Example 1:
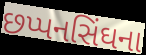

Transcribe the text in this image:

છપ્પનસિંઘના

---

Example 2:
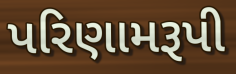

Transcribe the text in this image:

પરિણામરૂપી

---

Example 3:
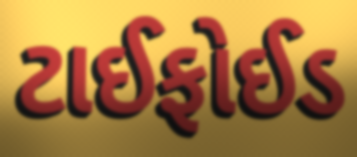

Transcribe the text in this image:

ટાઈફોઈડ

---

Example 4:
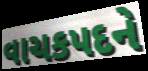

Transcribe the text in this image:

વાચકપદને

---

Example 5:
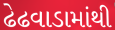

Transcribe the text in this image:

ઢેઢવાડામાંથી